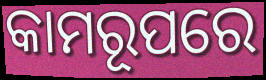
କାମରୂପରେ